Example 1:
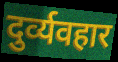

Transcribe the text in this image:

दुर्व्यवहार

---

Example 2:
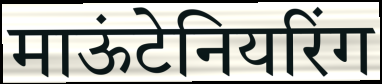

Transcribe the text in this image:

माऊंटेनियरिंग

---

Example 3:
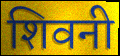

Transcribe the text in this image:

शिवनी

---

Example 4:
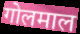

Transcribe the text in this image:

गोलमाल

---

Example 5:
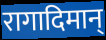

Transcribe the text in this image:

रागादिमान्